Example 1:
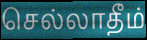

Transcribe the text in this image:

செல்லாதீம்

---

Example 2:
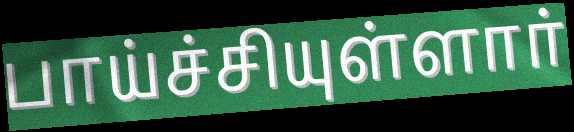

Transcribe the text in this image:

பாய்ச்சியுள்ளார்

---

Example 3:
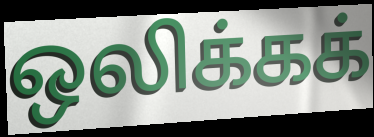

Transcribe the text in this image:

ஒலிக்கக்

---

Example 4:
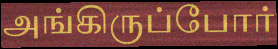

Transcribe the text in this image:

அங்கிருப்போர்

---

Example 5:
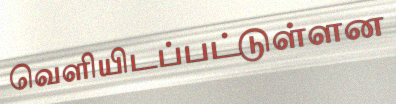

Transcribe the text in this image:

வெளியிடப்பட்டுள்ளன